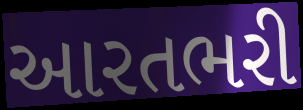
આરતભરી